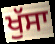
ਖੁੱਸਾ